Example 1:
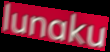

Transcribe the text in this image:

lunaku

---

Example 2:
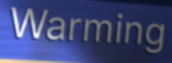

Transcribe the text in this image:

Warming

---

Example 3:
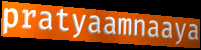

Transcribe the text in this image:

pratyaamnaaya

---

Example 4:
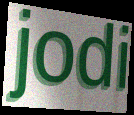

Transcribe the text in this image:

jodi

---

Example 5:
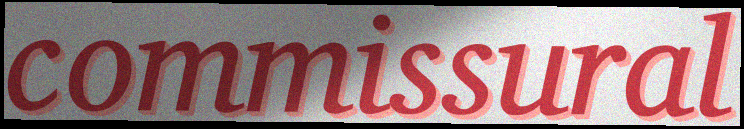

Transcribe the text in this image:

commissural